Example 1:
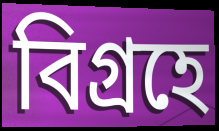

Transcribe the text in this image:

বিগ্রহে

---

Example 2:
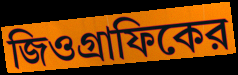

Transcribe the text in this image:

জিওগ্রাফিকের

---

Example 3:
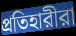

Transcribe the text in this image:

প্রতিহারীরা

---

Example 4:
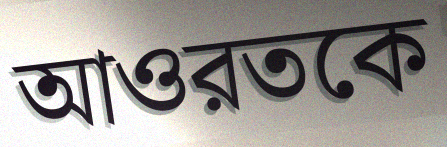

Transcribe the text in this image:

আওরতকে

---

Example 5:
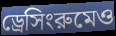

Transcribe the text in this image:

ড্রেসিংরুমেও